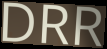
DRR